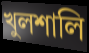
খুলশালি